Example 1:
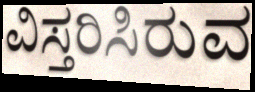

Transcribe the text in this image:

ವಿಸ್ತರಿಸಿರುವ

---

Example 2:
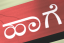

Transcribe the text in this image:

ಹಾಗೆ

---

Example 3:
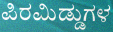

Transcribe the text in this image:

ಪಿರಮಿಡ್ಡುಗಳ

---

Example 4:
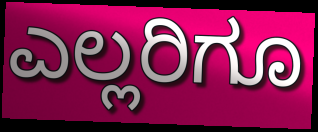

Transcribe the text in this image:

ಎಲ್ಲರಿಗೂ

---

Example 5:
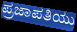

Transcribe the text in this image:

ಪ್ರಜಾಪತಿಯು